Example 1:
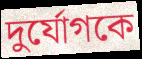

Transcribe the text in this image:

দুর্যোগকে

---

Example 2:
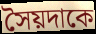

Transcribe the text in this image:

সৈয়দাকে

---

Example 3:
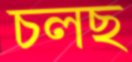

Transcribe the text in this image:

চলছ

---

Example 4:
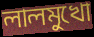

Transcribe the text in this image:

লালমুখো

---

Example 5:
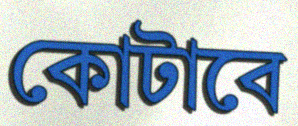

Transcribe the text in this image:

কোটাবে